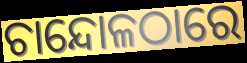
ଚାନ୍ଦୋଳଠାରେ